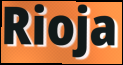
Rioja